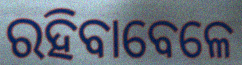
ରହିବାବେଳେ